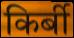
किर्बी